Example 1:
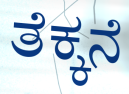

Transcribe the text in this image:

ತೆಕ್ಕನೆ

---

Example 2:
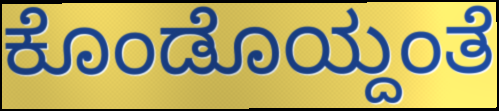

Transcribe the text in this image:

ಕೊಂಡೊಯ್ದಂತೆ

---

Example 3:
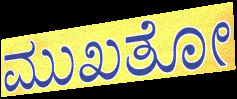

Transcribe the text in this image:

ಮುಖತೋ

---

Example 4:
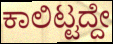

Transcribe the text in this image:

ಕಾಲಿಟ್ಟದ್ದೇ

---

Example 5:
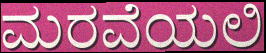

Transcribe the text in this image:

ಮರವೆಯಲಿ